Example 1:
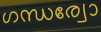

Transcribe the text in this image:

ഗന്ധര്വോ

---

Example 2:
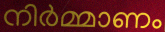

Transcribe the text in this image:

നിർമ്മാണം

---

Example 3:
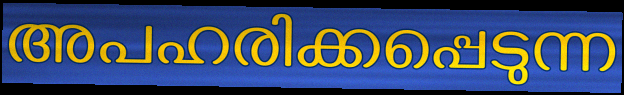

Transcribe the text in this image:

അപഹരിക്കപ്പെടുന്ന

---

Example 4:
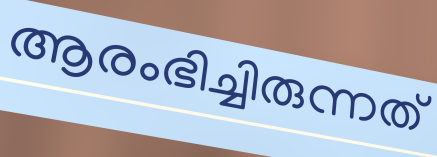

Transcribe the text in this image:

ആരംഭിച്ചിരുന്നത്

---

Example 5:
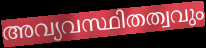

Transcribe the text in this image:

അവ്യവസ്ഥിതത്വവും